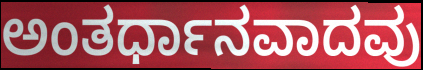
ಅಂತರ್ಧಾನವಾದವು